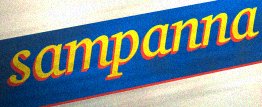
sampanna